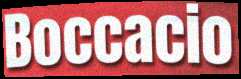
Boccacio